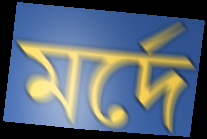
মর্দে